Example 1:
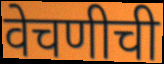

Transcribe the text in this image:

वेचणीची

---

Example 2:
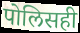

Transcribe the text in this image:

पोलिसही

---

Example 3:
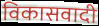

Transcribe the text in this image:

विकासवादी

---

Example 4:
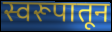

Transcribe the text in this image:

स्वरूपातून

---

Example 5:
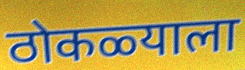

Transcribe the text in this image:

ठोकळ्याला